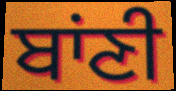
ਬਾਂਣੀ